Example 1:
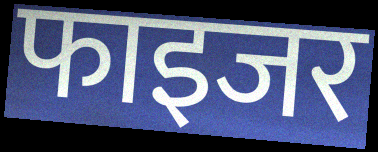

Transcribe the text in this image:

फाइजर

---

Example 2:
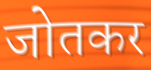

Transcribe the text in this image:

जोतकर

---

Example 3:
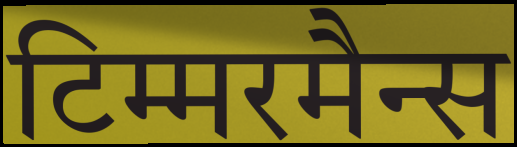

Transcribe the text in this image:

टिम्मरमैन्स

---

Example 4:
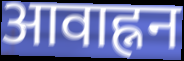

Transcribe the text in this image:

आवाह्नन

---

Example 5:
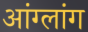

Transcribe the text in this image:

आंग्लांग